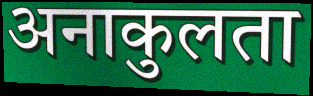
अनाकुलता